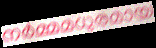
നർമ്മമധുരമായ